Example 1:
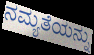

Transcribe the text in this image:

ನಮ್ಯತೆಯನ್ನು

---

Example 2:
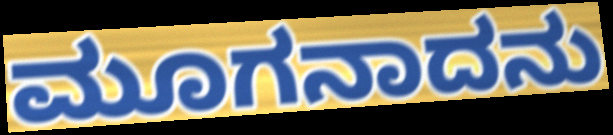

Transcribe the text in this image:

ಮೂಗನಾದನು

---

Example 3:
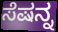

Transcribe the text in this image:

ಸೆಷನ್ನ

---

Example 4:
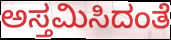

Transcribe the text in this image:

ಅಸ್ತಮಿಸಿದಂತೆ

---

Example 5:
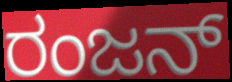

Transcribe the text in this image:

ರಂಜನ್